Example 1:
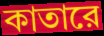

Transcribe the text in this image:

কাতারে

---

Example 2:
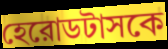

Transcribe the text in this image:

হেরোডটাসকে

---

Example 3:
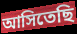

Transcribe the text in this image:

আসিতেছি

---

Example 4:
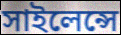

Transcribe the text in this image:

সাইলেন্সে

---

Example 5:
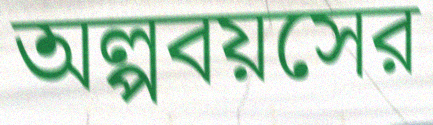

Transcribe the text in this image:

অল্পবয়সের